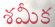
శమీక